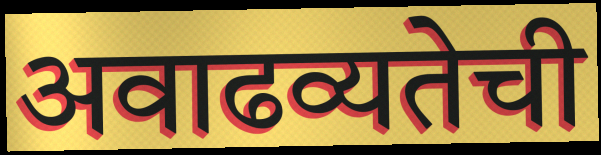
अवाढव्यतेची